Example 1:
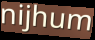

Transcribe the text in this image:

nijhum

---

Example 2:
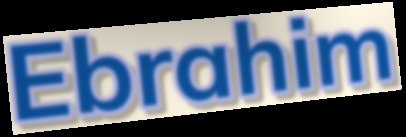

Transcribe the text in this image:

Ebrahim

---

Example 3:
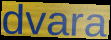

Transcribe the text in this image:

dvara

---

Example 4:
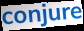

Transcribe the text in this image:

conjure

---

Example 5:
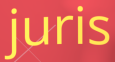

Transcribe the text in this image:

juris